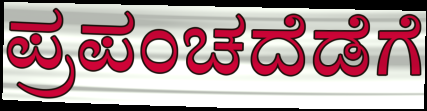
ಪ್ರಪಂಚದೆಡೆಗೆ